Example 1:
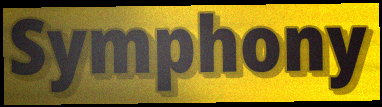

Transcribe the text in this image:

Symphony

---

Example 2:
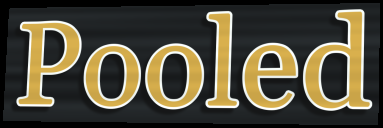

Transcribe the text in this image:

Pooled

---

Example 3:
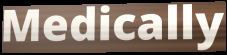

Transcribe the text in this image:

Medically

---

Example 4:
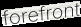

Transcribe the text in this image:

forefront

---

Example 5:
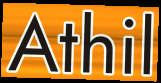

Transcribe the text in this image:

Athil